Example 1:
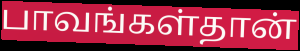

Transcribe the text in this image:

பாவங்கள்தான்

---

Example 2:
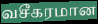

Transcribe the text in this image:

வசீகரமான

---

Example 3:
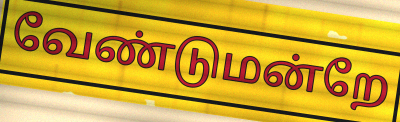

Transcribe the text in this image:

வேண்டுமன்றே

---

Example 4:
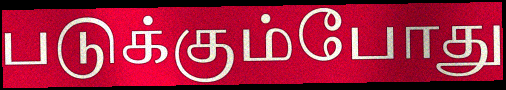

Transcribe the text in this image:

படுக்கும்போது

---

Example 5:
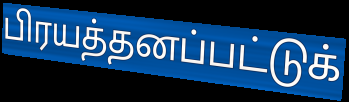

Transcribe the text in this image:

பிரயத்தனப்பட்டுக்